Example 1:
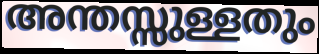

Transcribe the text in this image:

അന്തസ്സുള്ളതും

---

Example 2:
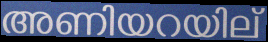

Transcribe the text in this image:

അണിയറയില്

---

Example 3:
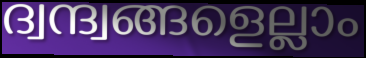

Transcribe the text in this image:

ദ്വന്ദ്വങ്ങളെല്ലാം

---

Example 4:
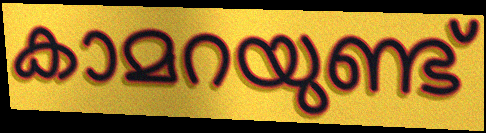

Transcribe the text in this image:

കാമറയുണ്ട്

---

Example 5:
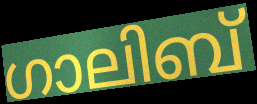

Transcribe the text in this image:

ഗാലിബ്